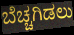
ಬೆಚ್ಚಗಿಡಲು